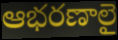
ఆభరణాలై